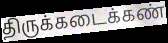
திருக்கடைக்கண்